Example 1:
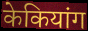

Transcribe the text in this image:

केकियांग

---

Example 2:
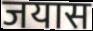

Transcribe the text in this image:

जयास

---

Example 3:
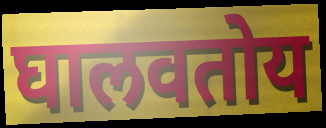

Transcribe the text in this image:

घालवतोय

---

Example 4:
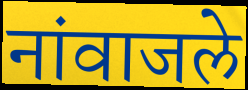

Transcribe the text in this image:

नांवाजले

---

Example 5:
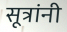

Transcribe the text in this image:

सूत्रांनी